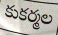
కుకర్మల